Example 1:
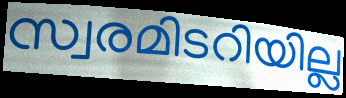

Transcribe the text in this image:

സ്വരമിടറിയില്ല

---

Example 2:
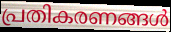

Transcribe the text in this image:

പ്രതികരണങ്ങൾ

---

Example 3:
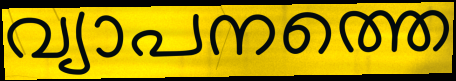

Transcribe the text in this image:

വ്യാപനത്തെ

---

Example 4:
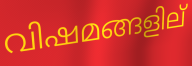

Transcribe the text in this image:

വിഷമങ്ങളില്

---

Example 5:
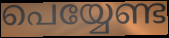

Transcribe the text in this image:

പെയ്യേണ്ട